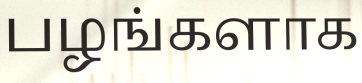
பழங்களாக